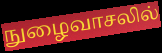
நுழைவாசலில்